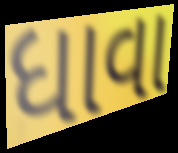
ધાવા